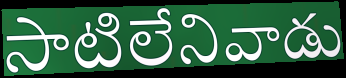
సాటిలేనివాడు